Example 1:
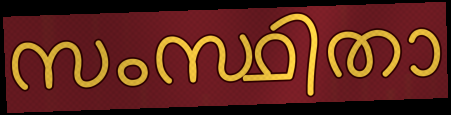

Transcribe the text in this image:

സംസ്ഥിതാ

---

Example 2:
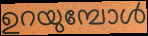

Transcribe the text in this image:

ഉറയുമ്പോൾ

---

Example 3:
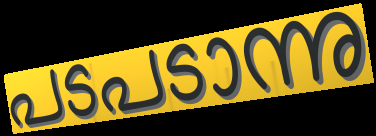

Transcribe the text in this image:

പടപടാന്നു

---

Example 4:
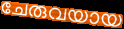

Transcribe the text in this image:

ചേരുവയായ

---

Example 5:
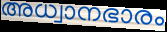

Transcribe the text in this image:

അധ്വാനഭാരം